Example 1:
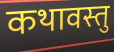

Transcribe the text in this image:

कथावस्‍तु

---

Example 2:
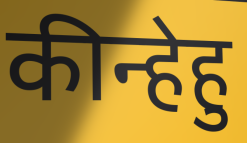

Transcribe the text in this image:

कीन्हेहु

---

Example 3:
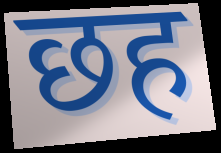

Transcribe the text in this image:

छह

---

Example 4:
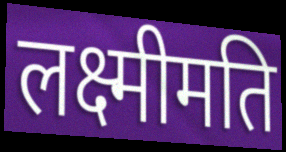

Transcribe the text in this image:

लक्ष्मीमति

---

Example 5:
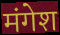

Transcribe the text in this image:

मंगेश